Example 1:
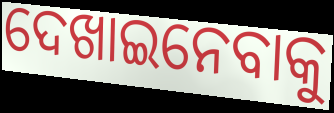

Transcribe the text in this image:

ଦେଖାଇନେବାକୁ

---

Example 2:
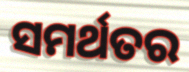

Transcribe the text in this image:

ସମର୍ଥତର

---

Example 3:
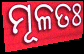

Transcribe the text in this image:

ମୂଳତଃ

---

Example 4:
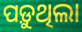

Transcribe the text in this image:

ପଡ଼ୁଥିଲା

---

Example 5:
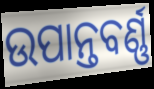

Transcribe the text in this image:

ଉପାନ୍ତବର୍ଣ୍ଣ